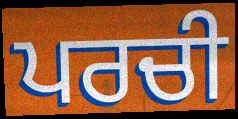
ਪਰਚੀ